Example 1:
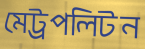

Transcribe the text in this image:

মেট্রপলিটন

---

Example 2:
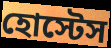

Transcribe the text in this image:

হোস্টেস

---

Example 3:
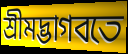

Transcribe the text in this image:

শ্রীমদ্ভাগবতে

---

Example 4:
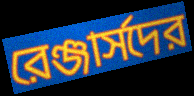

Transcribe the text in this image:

রেঞ্জার্সদের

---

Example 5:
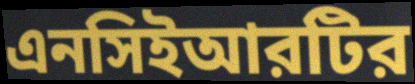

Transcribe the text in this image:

এনসিইআরটির